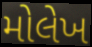
મોલેખ